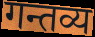
गन्तव्य